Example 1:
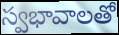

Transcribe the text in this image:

స్వభావాలతో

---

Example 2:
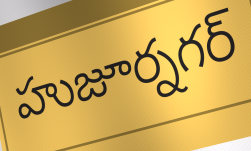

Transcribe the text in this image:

హుజూర్నగర్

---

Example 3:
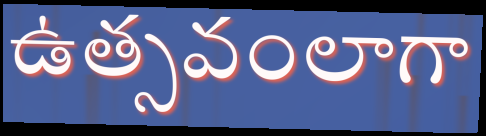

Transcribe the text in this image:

ఉత్సవంలాగా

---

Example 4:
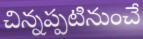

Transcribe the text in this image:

చిన్నప్పటినుంచే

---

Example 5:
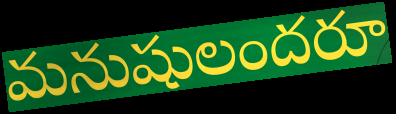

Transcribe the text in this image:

మనుషులందరూ